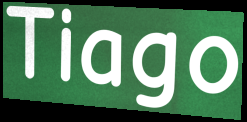
Tiago